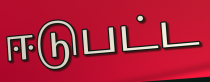
ஈடுபட்ட